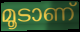
മൂടാണ്